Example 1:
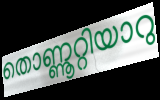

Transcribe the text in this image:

തൊണ്ണൂറ്റിയാറു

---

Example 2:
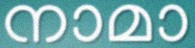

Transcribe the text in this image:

നാമാ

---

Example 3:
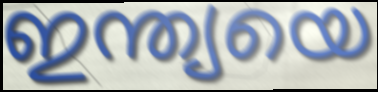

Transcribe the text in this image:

ഇന്ത്യയെ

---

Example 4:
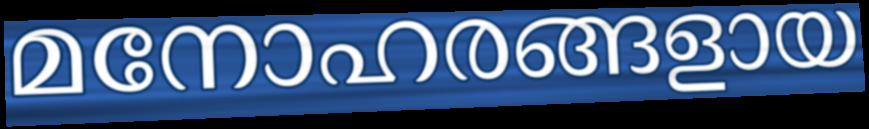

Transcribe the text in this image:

മനോഹരങ്ങളായ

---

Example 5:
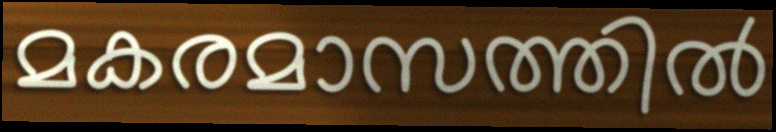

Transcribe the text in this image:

മകരമാസത്തിൽ